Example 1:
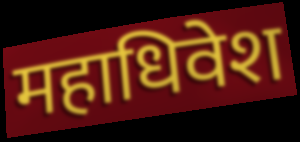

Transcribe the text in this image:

महाधिवेश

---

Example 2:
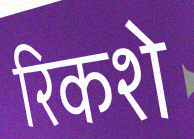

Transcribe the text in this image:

रिकशे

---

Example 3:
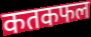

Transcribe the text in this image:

कतकफल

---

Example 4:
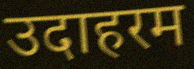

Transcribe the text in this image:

उदाहरम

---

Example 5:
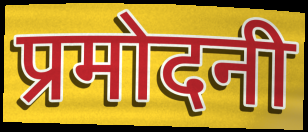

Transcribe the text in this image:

प्रमोदनी